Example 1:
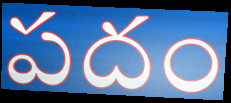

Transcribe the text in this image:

పదం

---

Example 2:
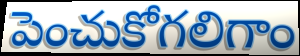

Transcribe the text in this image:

పెంచుకోగలిగాం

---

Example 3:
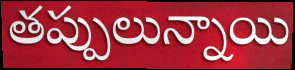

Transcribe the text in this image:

తప్పులున్నాయి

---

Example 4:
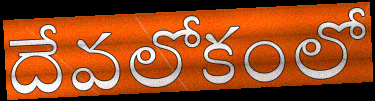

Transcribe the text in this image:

దేవలోకంలో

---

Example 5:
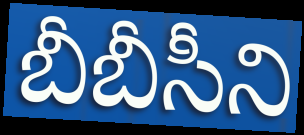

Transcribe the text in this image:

బీబీసీని